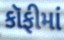
કૉફીમાં